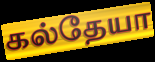
கல்தேயா